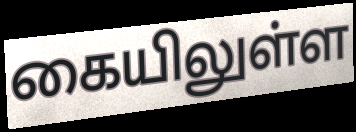
கையிலுள்ள